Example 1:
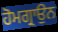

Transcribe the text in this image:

ਹੋਮਗ੍ਰਾਉਨ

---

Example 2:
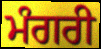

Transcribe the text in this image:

ਮੰਗਰੀ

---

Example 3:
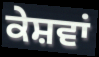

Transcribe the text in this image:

ਕੇਸ਼ਵਾਂ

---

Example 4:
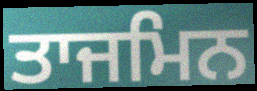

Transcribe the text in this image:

ਤਾਜਮਿਨ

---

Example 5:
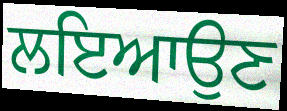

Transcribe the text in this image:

ਲਇਆਉਣ